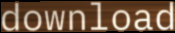
download